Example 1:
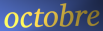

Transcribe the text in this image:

octobre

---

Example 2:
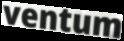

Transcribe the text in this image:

ventum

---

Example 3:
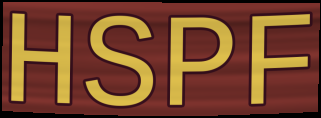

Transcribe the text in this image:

HSPF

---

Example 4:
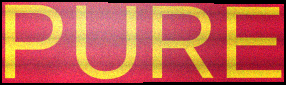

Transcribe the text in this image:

PURE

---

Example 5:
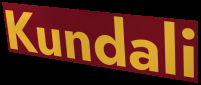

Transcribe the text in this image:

Kundali